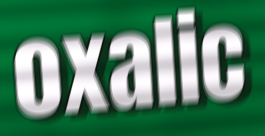
oxalic